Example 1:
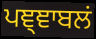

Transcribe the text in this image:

ਪਞ੍ਞਾਬਲਂ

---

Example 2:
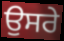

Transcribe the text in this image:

ਉਸਰੇ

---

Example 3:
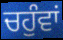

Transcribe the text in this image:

ਚਹੁੰਵਾਂ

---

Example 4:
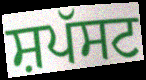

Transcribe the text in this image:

ਸ਼ਪੱਸਟ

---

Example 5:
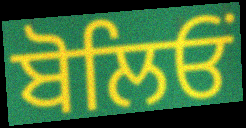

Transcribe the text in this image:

ਬੋਲਿਓਂ